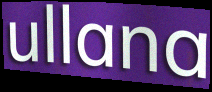
ullana